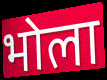
भोला